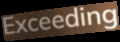
Exceeding